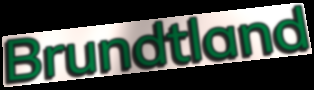
Brundtland